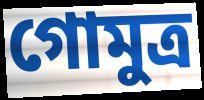
গোমুত্ৰ